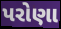
પરોણા